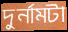
দুর্নামটা